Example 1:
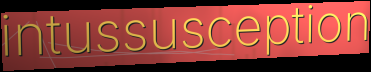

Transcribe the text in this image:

intussusception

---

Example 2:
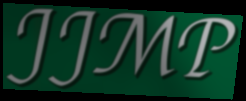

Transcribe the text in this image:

JJMP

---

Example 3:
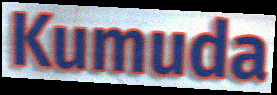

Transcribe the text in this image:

Kumuda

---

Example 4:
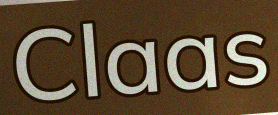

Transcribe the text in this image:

Claas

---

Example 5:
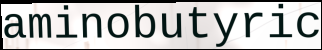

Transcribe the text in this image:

aminobutyric